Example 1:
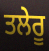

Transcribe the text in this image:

ਤਲੇਰੂ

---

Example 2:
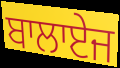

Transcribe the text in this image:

ਬਾਲਾਏਜ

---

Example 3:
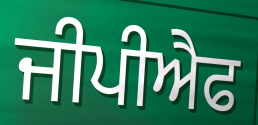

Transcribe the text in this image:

ਜੀਪੀਐਫ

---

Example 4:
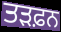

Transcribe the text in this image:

ਤੜਫ਼ਨ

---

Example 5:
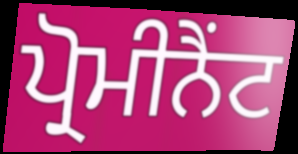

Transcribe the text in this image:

ਪ੍ਰੋਮੀਨੈਂਟ